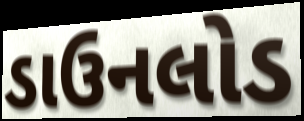
ડાઉનલોડ